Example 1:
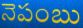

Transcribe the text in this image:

నెపంబు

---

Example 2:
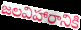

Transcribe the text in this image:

జలవిహారానికి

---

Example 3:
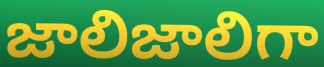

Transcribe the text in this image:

జాలిజాలిగా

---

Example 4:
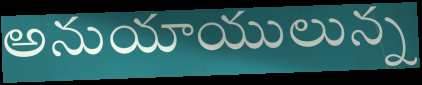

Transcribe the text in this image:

అనుయాయులున్న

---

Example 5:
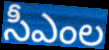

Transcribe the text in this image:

సీఎంల